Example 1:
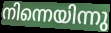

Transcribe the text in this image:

നിന്നെയിന്നു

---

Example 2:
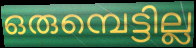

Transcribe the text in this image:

ഒരുമ്പെട്ടില്ല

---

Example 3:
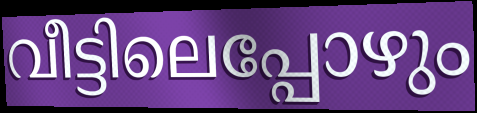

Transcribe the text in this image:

വീട്ടിലെപ്പോഴും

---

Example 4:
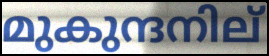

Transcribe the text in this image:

മുകുന്ദനില്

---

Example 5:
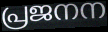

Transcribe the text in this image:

പ്രജനന